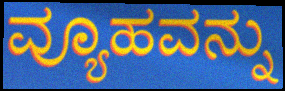
ವ್ಯೂಹವನ್ನು